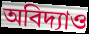
অবিদ্যাও